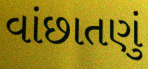
વાંછાતણું